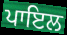
ਪਾਇਲ